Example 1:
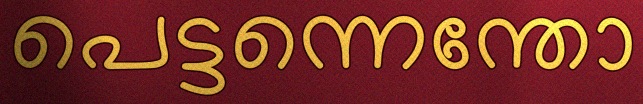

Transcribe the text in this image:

പെട്ടന്നെന്തോ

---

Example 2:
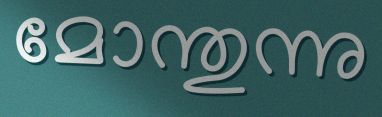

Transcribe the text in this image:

മോന്തുന്നു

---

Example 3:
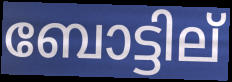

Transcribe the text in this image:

ബോട്ടില്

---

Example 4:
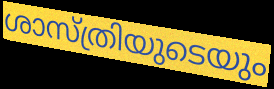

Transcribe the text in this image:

ശാസ്ത്രിയുടെയും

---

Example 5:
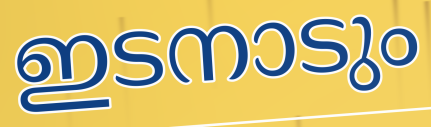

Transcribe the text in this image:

ഇടനാടും